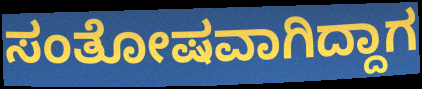
ಸಂತೋಷವಾಗಿದ್ದಾಗ